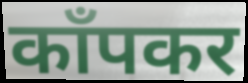
काँपकर